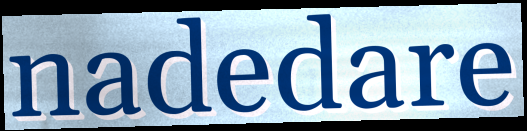
nadedare